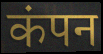
कंपन